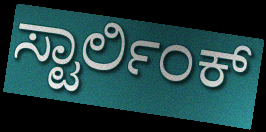
ಸ್ಟಾರ್ಲಿಂಕ್